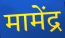
मामेंद्र